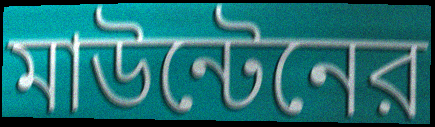
মাউন্টেনের